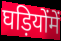
घड़ियोंमें